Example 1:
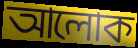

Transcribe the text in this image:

আলোক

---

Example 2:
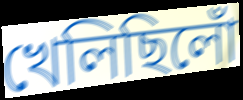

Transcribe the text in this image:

খেলিছিলোঁ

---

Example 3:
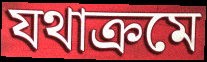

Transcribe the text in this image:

যথাক্ৰমে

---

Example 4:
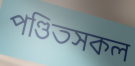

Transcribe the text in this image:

পণ্ডিতসকল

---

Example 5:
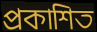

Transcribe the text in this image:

প্ৰকাশিত